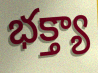
భక్త్యా